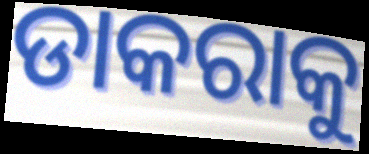
ଡାକରାକୁ